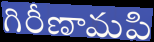
గిరీణామపి